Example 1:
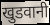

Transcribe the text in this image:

खुडवानी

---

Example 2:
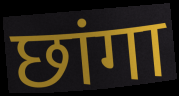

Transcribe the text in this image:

छांगा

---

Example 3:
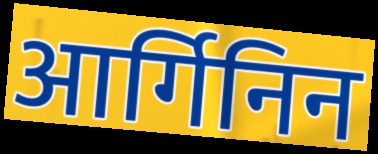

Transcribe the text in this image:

आर्गिनिन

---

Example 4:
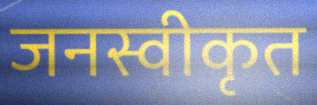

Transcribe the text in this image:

जनस्वीकृत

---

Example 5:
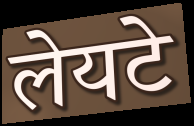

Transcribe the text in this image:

लेयटे